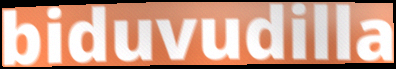
biduvudilla